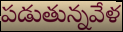
పడుతున్నవేళ